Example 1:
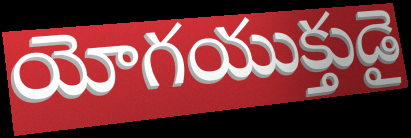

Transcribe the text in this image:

యోగయుక్తుడై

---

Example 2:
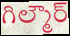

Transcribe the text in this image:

గిల్మౌర్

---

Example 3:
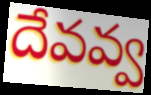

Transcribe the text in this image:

దేవవ్వ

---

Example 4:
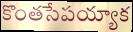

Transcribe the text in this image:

కొంతసేపయ్యాక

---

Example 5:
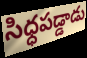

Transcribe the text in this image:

సిధ్ధపడ్డాడు